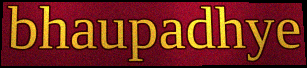
bhaupadhye